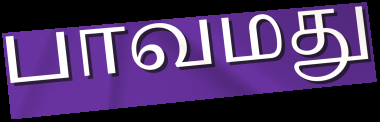
பாவமது